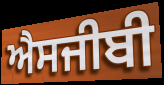
ਐਸਜੀਬੀ